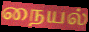
நையல்